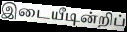
இடையீடின்றிப்